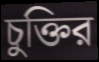
চুক্তির